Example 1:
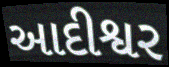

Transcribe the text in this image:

આદીશ્વર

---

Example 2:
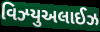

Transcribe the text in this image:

વિઝ્યુઅલાઈઝ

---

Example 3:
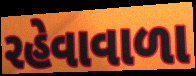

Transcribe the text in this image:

રહેવાવાળા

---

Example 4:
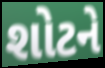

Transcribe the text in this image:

શોટને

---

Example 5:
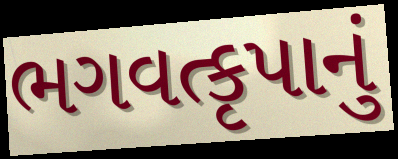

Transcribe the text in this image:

ભગવત્કૃપાનું